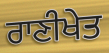
ਰਾਣੀਖੇਤ